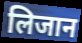
लिजान